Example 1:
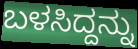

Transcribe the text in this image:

ಬಳಸಿದ್ದನ್ನು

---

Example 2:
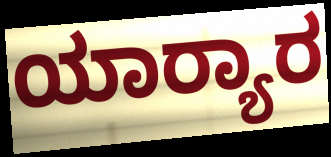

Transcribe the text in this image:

ಯಾರ‍್ಯಾರ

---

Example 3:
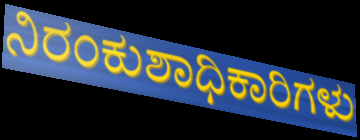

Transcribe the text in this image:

ನಿರಂಕುಶಾಧಿಕಾರಿಗಳು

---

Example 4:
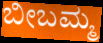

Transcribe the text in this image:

ಬೀಬಮ್ಮ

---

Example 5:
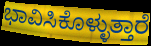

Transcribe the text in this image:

ಭಾವಿಸಿಕೊಳ್ಳುತ್ತಾರೆ